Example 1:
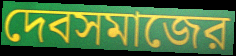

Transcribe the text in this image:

দেবসমাজের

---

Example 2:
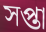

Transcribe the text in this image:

সপ্তা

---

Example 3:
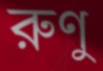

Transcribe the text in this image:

রুণু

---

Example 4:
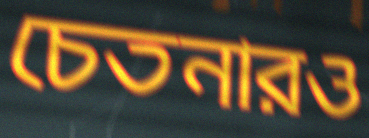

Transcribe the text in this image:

চেতনারও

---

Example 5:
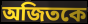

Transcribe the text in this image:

অজিতকে